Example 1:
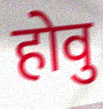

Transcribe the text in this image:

होवु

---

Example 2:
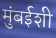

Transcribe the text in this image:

मुंबईशी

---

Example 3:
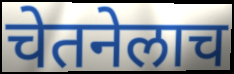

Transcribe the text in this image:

चेतनेलाच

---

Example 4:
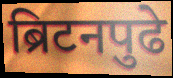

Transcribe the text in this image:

ब्रिटनपुढे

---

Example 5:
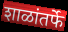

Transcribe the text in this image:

शाळांतर्फे